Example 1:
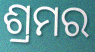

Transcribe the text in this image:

ଶ୍ରମର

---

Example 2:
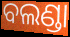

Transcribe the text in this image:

ବଲଣ୍ଡା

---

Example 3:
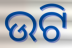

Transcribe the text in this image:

ଉଟି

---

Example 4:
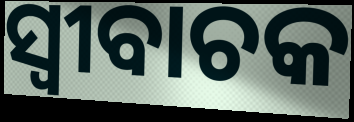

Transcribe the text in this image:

ସ୍ବୀବାଚକ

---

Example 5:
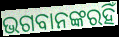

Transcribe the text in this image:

ଭଗବାନଙ୍କରହିଁ